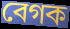
বেগক